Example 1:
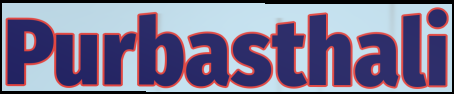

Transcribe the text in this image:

Purbasthali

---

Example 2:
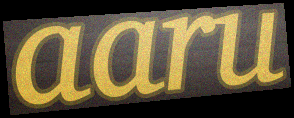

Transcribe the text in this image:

aaru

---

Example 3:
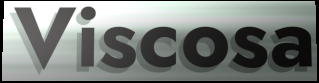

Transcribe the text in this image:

Viscosa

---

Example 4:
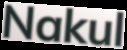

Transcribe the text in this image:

Nakul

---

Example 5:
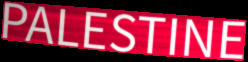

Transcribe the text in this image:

PALESTINE